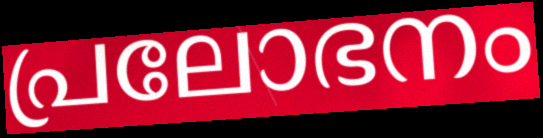
പ്രലോഭനം